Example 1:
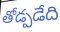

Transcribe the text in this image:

తోడ్పడేది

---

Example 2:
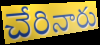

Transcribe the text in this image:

చేరినారు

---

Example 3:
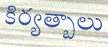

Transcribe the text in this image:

కిర్యత్బాలు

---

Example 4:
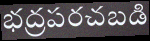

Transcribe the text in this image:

భద్రపరచబడి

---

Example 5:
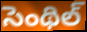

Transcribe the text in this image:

సెంథిల్